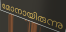
മോനായിരുന്നു